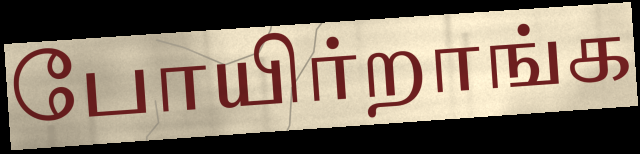
போயிர்றாங்க